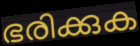
ഭരിക്കുക